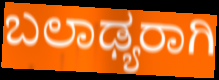
ಬಲಾಢ್ಯರಾಗಿ